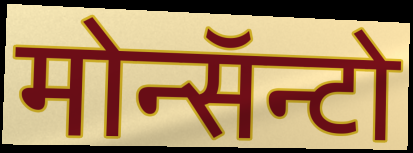
मोन्सॅन्टो